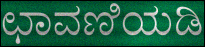
ಛಾವಣಿಯಡಿ